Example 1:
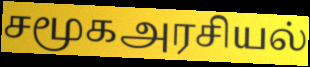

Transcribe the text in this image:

சமூகஅரசியல்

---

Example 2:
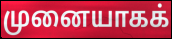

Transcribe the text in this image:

முனையாகக்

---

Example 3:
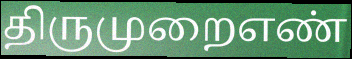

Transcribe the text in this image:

திருமுறைஎண்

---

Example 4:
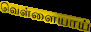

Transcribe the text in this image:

வெள்ளையாய்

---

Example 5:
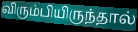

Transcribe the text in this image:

விரும்பியிருந்தால்